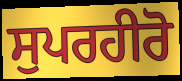
ਸੁਪਰਹੀਰੋ